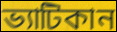
ভ্যাটিকান